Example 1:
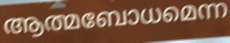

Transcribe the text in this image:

ആത്മബോധമെന്ന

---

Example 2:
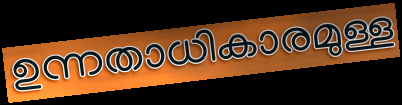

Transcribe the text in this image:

ഉന്നതാധികാരമുള്ള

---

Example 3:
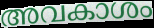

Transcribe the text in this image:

അവകാശം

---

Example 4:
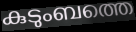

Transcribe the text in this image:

കുടുംബത്തെ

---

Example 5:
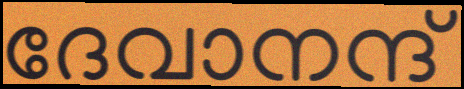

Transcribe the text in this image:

ദേവാനന്ദ്